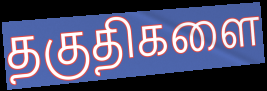
தகுதிகளை